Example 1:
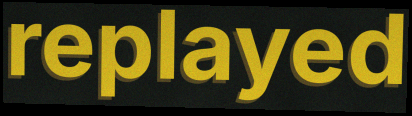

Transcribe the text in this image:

replayed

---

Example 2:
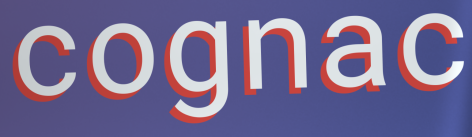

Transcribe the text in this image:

cognac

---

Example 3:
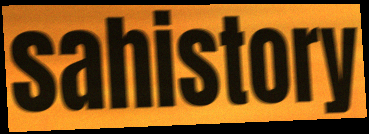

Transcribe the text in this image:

sahistory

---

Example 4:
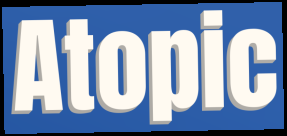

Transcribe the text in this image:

Atopic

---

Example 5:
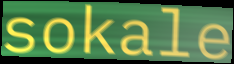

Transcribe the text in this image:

sokale